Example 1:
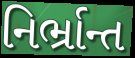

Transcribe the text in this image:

નિર્ભ્રાન્ત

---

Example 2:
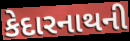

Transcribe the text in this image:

કેદારનાથની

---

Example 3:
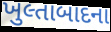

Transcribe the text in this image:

ખુલ્તાબાદના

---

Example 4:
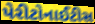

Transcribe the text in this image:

પેરીટોનાઈટીસ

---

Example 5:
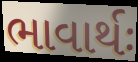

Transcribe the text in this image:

ભાવાર્થઃ